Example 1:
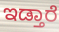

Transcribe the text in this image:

ಇಡ್ತಾರೆ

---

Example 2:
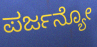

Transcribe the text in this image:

ಪರ್ಜನ್ಯೋ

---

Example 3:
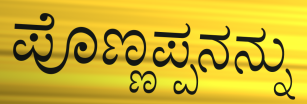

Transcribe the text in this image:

ಪೊಣ್ಣಪ್ಪನನ್ನು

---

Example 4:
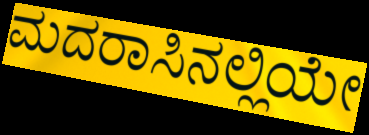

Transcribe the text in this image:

ಮದರಾಸಿನಲ್ಲಿಯೇ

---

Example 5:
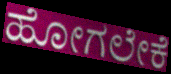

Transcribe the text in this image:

ಹೋಗಲೇಕೆ